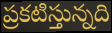
ప్రకటిస్తున్నది